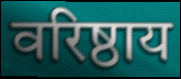
वरिष्ठाय